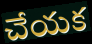
చేయక